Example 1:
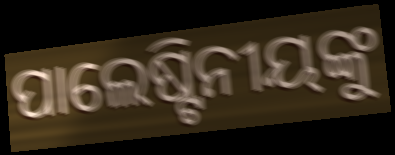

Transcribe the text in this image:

ପାଲେଷ୍ଟିନୀୟଙ୍କୁ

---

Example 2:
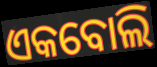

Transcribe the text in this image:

ଏକବୋଲି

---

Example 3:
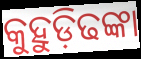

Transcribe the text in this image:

କୁହୁଡ଼ିଢଙ୍କା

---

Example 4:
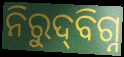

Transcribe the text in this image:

ନିରୁଦ୍‌ବିଗ୍ନ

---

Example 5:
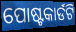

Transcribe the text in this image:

ପୋଷ୍ଟକାର୍ଡଟି